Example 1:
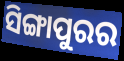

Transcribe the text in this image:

ସିଙ୍ଗାପୁରର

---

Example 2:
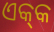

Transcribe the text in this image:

ଏକ୍‍କ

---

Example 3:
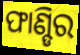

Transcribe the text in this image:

ଫାଣ୍ଡିର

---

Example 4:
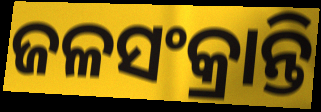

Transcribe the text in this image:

ଜଳସଂକ୍ରାନ୍ତି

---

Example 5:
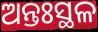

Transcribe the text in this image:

ଅନ୍ତଃସ୍ଥଳ